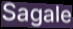
Sagale